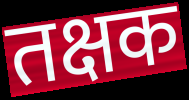
तक्षक